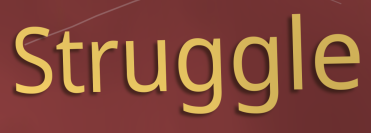
Struggle